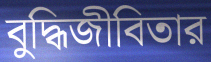
বুদ্ধিজীবিতার